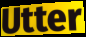
Utter